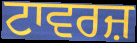
ਟਾਵਰਜ਼